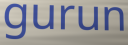
gurun